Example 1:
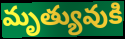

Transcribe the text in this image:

మృత్యువుకి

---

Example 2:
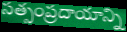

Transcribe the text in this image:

సత్సంప్రదాయాన్ని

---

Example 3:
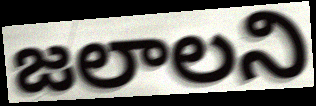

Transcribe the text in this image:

జలాలని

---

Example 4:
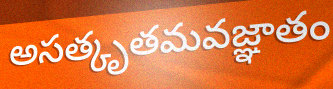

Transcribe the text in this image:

అసత్కృతమవజ్ఞాతం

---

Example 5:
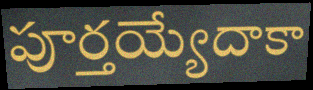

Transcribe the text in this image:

పూర్తయ్యేదాకా